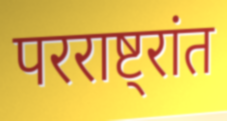
परराष्ट्रांत